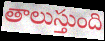
తాలుస్తుంది